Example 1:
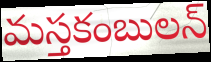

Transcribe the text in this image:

మస్తకంబులన్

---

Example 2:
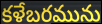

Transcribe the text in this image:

కళేబరమును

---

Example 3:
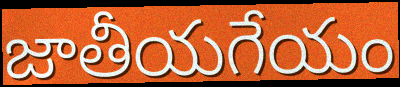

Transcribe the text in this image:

జాతీయగేయం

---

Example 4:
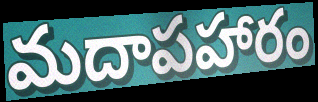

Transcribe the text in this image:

మదాపహారం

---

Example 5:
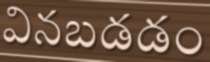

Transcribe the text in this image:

వినబడడం